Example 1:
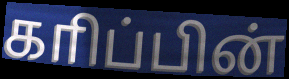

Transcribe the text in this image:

கரிப்பின்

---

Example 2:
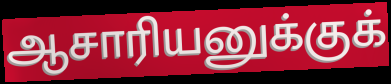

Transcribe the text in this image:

ஆசாரியனுக்குக்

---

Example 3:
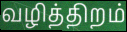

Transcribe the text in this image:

வழித்திறம்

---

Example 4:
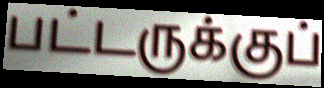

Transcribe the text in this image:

பட்டருக்குப்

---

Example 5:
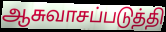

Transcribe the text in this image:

ஆசுவாசப்படுத்தி